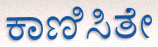
ಕಾಣಿಸಿತೇ